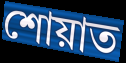
শোয়াত